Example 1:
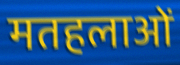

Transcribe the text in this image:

मतहलाओं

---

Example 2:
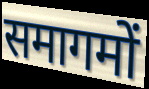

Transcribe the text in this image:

समागमों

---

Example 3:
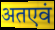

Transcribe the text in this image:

अतएवं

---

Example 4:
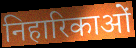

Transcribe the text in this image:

निहारिकाओं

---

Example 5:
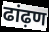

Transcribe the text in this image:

ढांढ़ण